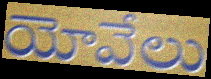
యోవేలు